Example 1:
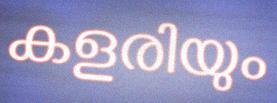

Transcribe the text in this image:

കളരിയും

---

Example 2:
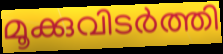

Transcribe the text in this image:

മൂക്കുവിടർത്തി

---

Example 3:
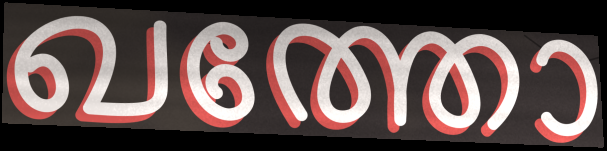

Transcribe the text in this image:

ഖത്തോ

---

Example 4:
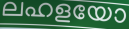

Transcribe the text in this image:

ലഹളയോ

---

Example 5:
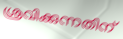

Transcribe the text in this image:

ശ്രവിക്കുന്നതിന്